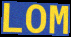
LOM